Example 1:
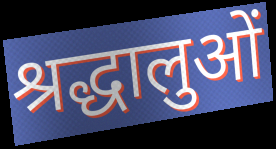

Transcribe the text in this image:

श्रद्धालुओं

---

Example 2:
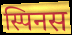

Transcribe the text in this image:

स्पिनस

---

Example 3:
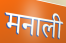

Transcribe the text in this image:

मनाली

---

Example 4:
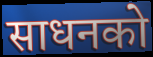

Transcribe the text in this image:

साधनको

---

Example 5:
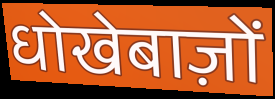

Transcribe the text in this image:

धोखेबाज़ों